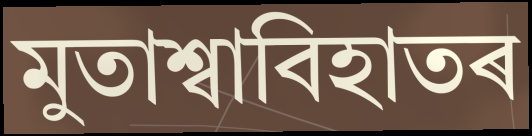
মুতাশ্বাবিহাতৰ